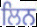
ਲਿਨ